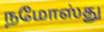
நமோஸ்து